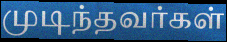
முடிந்தவர்கள்